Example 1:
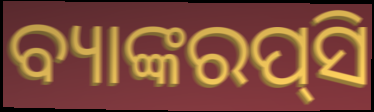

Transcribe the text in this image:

ବ୍ୟାଙ୍କରପ୍‌ସି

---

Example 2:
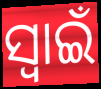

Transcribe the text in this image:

ସ୍ଵାଇଁ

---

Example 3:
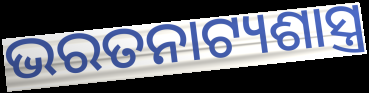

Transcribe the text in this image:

ଭରତନାଟ୍ୟଶାସ୍ତ୍ର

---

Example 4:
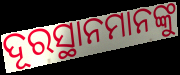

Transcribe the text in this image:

ଦୂରସ୍ଥାନମାନଙ୍କୁ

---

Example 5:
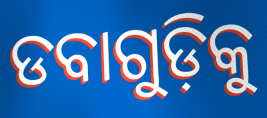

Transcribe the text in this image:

ଡବାଗୁଡ଼ିକୁ